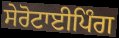
ਸੇਰੋਟਾਈਪਿੰਗ